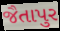
જૈતાપુર